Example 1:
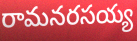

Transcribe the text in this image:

రామనరసయ్య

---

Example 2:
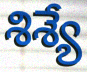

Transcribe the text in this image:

శిశ్యే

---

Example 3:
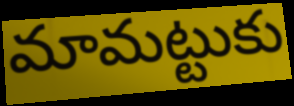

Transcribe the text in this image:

మామట్టుకు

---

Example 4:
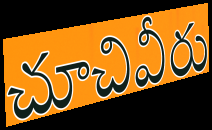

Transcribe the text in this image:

చూచివీరు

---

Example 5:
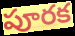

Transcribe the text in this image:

పూరక